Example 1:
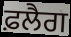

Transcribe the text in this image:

ਫ਼ਲੈਗ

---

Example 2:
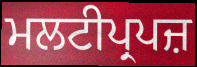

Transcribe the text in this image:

ਮਲਟੀਪ੍ਰਪਜ਼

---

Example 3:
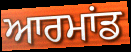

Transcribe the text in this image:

ਆਰਮਾਂਡ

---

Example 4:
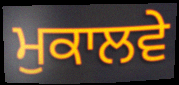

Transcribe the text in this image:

ਮੁਕਾਲਵੇ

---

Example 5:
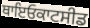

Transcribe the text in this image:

ਥਾਇਓਕਾਟਸੀਡ